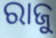
ରାଜୁ